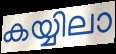
കയ്യിലാ